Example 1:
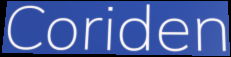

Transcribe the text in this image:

Coriden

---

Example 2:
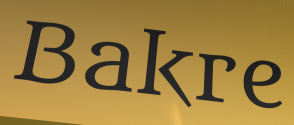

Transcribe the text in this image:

Bakre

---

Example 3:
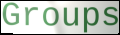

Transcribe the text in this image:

Groups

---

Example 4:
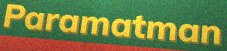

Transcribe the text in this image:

Paramatman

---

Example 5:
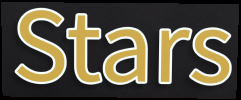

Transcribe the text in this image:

Stars